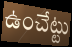
ఉంచేట్టు